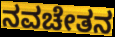
ನವಚೇತನ